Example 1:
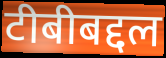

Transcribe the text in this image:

टीबीबद्दल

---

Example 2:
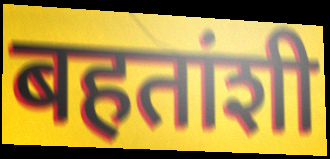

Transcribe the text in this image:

बहतांशी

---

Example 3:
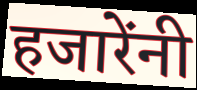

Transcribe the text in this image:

हजारेंनी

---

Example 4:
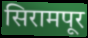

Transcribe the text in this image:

सिरामपूर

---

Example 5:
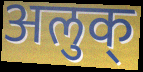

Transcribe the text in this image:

अलुक्